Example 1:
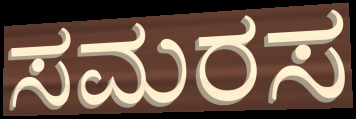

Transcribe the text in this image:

ಸಮರಸ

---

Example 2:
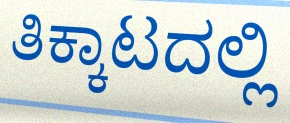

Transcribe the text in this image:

ತಿಕ್ಕಾಟದಲ್ಲಿ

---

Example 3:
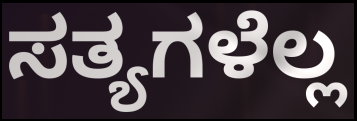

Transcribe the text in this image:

ಸತ್ಯಗಳೆಲ್ಲ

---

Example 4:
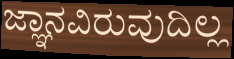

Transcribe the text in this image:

ಜ್ಞಾನವಿರುವುದಿಲ್ಲ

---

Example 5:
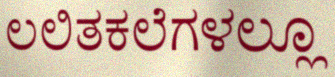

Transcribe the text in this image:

ಲಲಿತಕಲೆಗಳಲ್ಲೂ